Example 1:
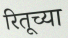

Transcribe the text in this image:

रितूच्या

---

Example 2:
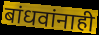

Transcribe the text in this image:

बांधवांनाही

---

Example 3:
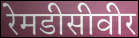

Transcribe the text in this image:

रेमडीसीवीर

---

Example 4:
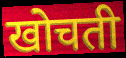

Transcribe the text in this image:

खोचती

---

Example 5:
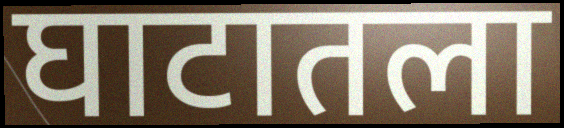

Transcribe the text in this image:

घाटातला